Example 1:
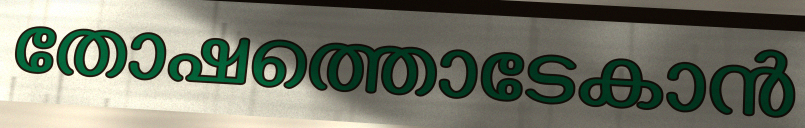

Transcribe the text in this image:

തോഷത്തൊടേകാൻ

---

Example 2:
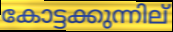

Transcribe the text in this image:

കോട്ടക്കുന്നില്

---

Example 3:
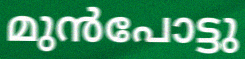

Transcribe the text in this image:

മുൻപോട്ടു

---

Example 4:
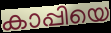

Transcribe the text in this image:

കാപ്പിയെ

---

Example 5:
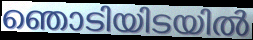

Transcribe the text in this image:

ഞൊടിയിടയിൽ